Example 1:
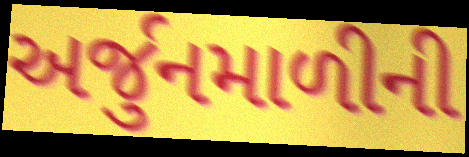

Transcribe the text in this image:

અર્જુનમાળીની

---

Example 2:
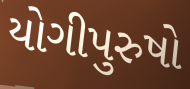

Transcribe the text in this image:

યોગીપુરુષો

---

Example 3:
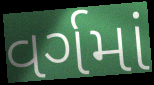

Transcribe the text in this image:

વર્ગમાં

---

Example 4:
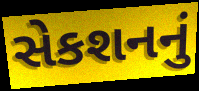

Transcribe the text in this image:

સેકશનનું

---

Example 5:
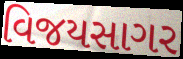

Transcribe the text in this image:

વિજયસાગર